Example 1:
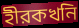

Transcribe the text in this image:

হীরকখনি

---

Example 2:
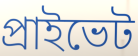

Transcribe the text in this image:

প্রাইভেট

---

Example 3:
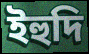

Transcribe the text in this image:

ইহুদি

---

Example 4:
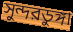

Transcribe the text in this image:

সুন্দরডুঙ্গা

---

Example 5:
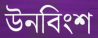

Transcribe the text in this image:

উনবিংশ